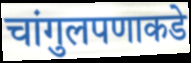
चांगुलपणाकडे